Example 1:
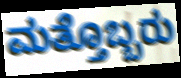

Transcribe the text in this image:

ಮತ್ತೊಬ್ಬರು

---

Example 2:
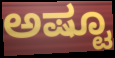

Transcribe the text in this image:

ಅಷ್ಟೂ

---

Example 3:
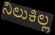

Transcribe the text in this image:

ನಿಲುಕಿಲ್ಲ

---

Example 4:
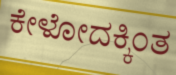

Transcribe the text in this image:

ಕೇಳೋದಕ್ಕಿಂತ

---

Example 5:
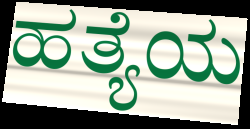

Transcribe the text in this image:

ಹತ್ಯೆಯ